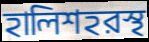
হালিশহরস্থ